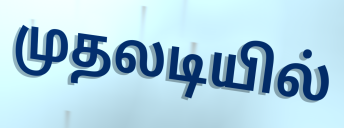
முதலடியில்